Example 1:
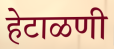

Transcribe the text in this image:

हेटाळणी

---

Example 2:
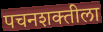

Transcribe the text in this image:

पचनशक्तीला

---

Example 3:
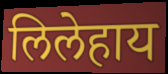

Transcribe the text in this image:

लिलेहाय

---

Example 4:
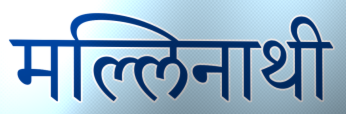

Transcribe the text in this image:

मल्लिनाथी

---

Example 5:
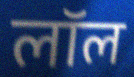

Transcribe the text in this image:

लॉल